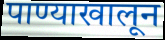
पाण्याखालून